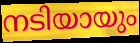
നടിയായും